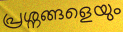
പ്രശ്നങ്ങളെയും